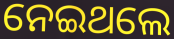
ନେଇଥଲେ